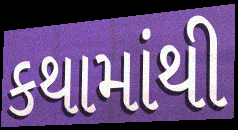
કથામાંથી